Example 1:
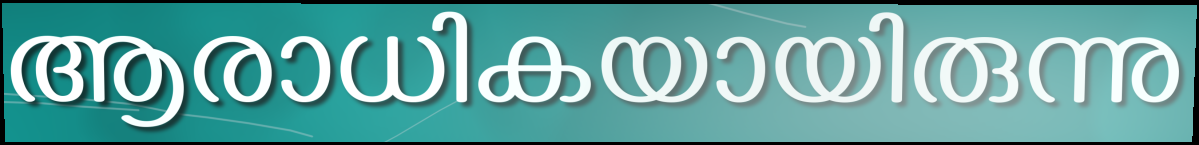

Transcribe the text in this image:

ആരാധികയായിരുന്നു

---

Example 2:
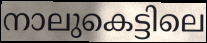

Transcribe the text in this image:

നാലുകെട്ടിലെ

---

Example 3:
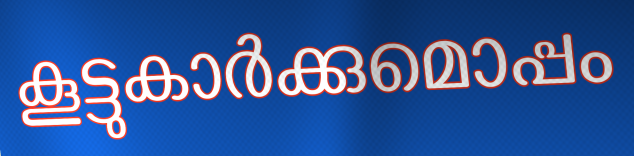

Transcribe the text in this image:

കൂട്ടുകാർക്കുമൊപ്പം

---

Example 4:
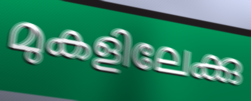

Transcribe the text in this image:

മുകളിലേക്കു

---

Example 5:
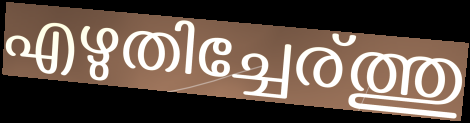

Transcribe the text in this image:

എഴുതിച്ചേര്ത്തു